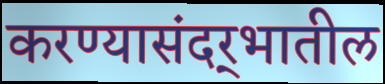
करण्यासंदर्भातील